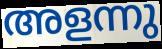
അളന്നു